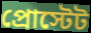
প্রোস্টেট